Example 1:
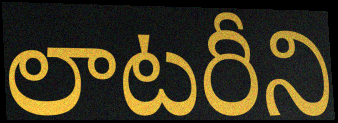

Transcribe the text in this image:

లాటరీని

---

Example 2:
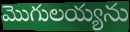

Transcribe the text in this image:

మొగులయ్యను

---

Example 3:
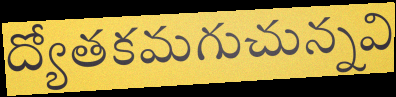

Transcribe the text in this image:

ద్యోతకమగుచున్నవి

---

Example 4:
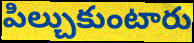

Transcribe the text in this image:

పిల్చుకుంటారు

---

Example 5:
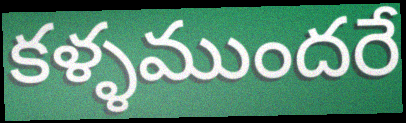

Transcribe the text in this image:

కళ్ళముందరే